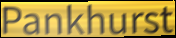
Pankhurst